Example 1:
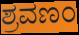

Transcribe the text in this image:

ಶ್ರವಣಂ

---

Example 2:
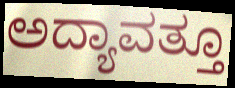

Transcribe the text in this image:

ಅದ್ಯಾವತ್ತೂ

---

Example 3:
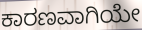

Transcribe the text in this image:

ಕಾರಣವಾಗಿಯೇ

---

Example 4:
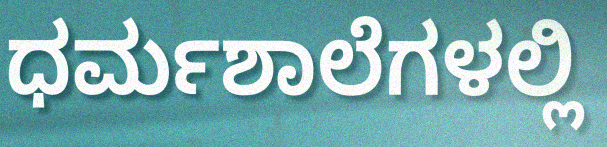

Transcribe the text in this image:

ಧರ್ಮಶಾಲೆಗಳಲ್ಲಿ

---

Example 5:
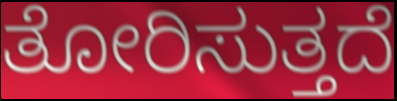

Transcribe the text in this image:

ತೋರಿಸುತ್ತದೆ